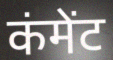
कंमेंट